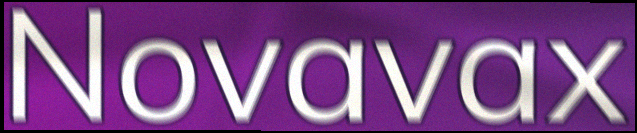
Novavax